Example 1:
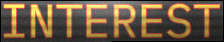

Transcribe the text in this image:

INTEREST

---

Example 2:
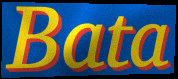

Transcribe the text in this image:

Bata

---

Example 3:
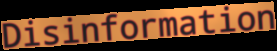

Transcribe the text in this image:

Disinformation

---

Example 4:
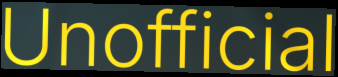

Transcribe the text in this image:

Unofficial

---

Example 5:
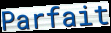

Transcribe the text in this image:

Parfait